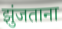
झुंजताना